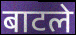
बाटले